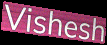
Vishesh